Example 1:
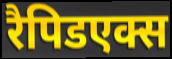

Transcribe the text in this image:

रैपिडएक्स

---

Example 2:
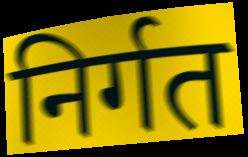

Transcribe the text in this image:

निर्गत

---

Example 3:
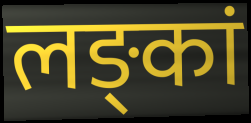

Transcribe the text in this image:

लङ्कां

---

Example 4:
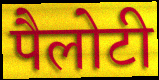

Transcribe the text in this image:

पैलोटी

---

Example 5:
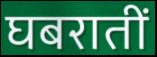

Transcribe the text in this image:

घबरातीं